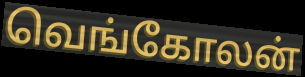
வெங்கோலன்